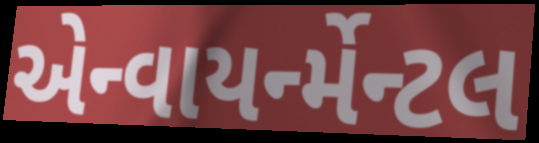
એન્વાયર્ન્મેન્ટલ